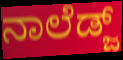
ನಾಲೆಡ್ಜ್